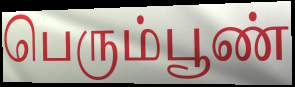
பெரும்பூண்